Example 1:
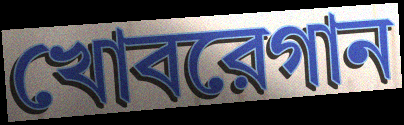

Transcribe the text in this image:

খোবরেগান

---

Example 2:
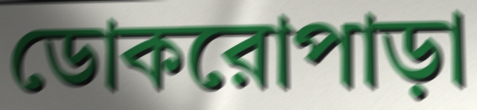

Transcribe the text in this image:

ডোকরোপাড়া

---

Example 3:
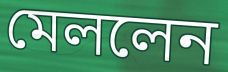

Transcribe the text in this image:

মেললেন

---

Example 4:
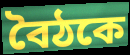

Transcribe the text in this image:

বৈঠকে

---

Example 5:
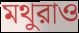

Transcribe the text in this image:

মথুরাও